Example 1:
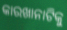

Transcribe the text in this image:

କାରଖାନାଟିକୁ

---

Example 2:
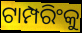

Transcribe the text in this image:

ଟାମ୍ପରିଂକୁ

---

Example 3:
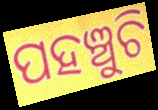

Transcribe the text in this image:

ପହଞ୍ଚୁଚି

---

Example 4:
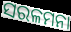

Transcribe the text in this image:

ସରଳମନା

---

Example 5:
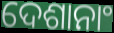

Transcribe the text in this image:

ଦେଶାନାଂ